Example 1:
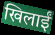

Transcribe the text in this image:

खिलाईं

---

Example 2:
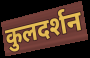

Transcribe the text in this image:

कुलदर्शन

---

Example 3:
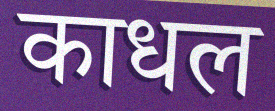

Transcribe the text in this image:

काधल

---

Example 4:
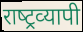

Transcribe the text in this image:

राष्‍ट्रव्‍यापी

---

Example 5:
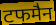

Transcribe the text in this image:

टफमैन